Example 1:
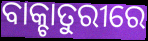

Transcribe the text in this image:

ବାକ୍ଚାତୁରୀରେ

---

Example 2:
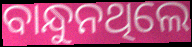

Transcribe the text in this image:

ବାନ୍ଧୁନଥିଲେ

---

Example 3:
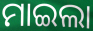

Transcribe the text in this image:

ମାଇଲା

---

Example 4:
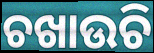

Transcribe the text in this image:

ଚଖାଉଚି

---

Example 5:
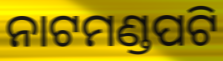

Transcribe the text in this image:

ନାଟମଣ୍ଡପଟି